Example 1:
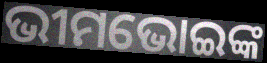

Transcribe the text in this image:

ଭୀମଭୋଇଙ୍କ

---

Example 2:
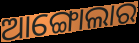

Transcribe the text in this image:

ଆଙ୍ଗୋଲାର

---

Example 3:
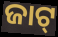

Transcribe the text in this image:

ଜାଟ୍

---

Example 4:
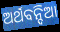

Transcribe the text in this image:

ଅର୍ଥବନ୍ଦିଆ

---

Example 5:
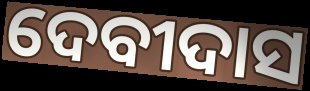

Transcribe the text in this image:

ଦେବୀଦାସ